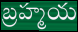
బ్రహ్మయ